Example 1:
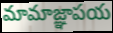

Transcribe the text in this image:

మామాజ్ఞాపయ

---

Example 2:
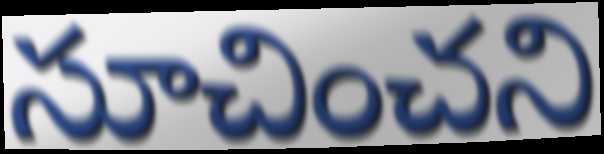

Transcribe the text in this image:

సూచించని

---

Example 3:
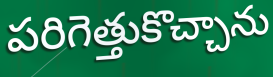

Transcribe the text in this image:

పరిగెత్తుకొచ్చాను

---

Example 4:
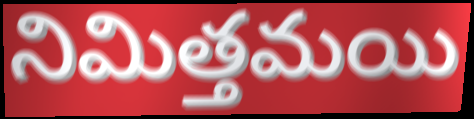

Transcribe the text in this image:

నిమిత్తమయి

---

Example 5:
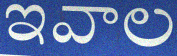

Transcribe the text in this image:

ఇవాల